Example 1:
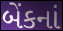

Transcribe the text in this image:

બેંકનાં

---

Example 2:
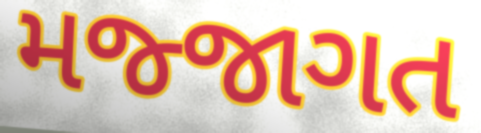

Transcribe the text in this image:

મજ્જાગત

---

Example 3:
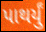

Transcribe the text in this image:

પાથર્યું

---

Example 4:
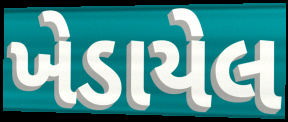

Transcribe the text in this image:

ખેડાયેલ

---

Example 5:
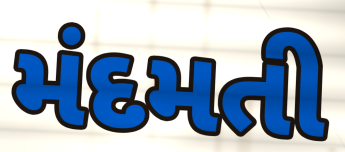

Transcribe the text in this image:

મંદમતી